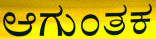
ಆಗುಂತಕ